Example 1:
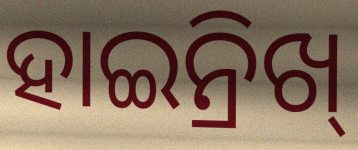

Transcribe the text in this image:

ହାଇନ୍ରିଖ୍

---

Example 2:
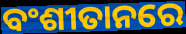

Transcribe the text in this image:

ବଂଶୀତାନରେ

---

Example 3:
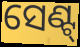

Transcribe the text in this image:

ସେଣ୍ଟ୍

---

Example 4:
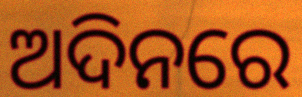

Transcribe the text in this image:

ଅଦିନରେ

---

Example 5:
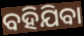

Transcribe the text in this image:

ବହିଯିବା